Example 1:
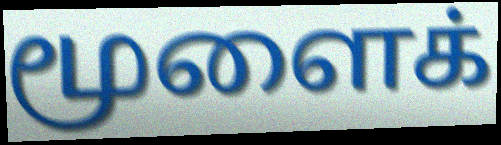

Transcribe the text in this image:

மூளைக்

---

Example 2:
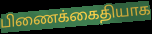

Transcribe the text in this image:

பிணைக்கைதியாக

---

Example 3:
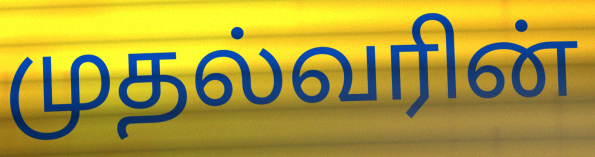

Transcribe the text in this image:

முதல்வரின்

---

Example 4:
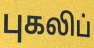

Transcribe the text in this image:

புகலிப்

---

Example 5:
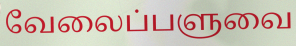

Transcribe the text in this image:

வேலைப்பளுவை